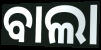
ବାଲା